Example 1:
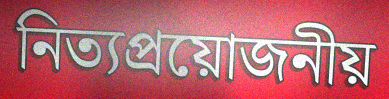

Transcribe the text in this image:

নিত্যপ্রয়োজনীয়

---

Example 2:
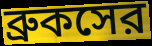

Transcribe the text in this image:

ব্রুকসের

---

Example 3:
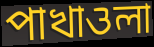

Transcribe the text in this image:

পাখাওলা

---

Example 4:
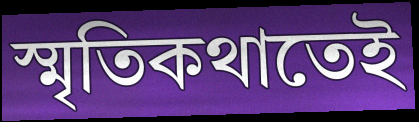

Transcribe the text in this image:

স্মৃতিকথাতেই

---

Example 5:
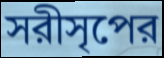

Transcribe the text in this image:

সরীসৃপের